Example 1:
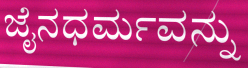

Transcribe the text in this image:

ಜೈನಧರ್ಮವನ್ನು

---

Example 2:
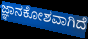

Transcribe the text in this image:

ಜ್ಞಾನಕೋಶವಾಗಿದೆ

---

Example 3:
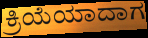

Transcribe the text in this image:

ಕ್ರಿಯೆಯಾದಾಗ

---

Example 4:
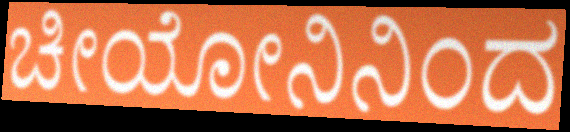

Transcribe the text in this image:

ಚೀಯೋನಿನಿಂದ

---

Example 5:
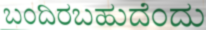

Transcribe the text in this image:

ಬಂದಿರಬಹುದೆಂದು